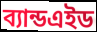
ব্যান্ডএইড